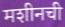
मशीनची